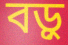
বড়ু